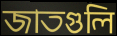
জাতগুলি